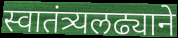
स्वातंत्र्यलढ्याने